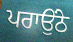
ਪਰਾਉਂਠੇ